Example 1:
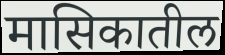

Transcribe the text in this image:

मासिकातील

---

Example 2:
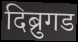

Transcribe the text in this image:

दिब्रुगड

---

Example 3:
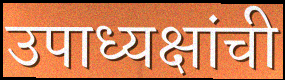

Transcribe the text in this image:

उपाध्यक्षांची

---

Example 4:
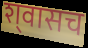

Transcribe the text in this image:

श्वासच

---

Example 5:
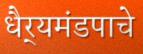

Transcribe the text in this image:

धैर्यमंडपाचे